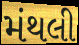
મંથલી